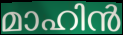
മാഹിൻ